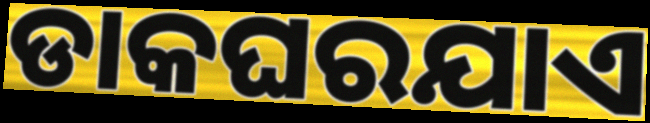
ଡାକଘରଯାଏ